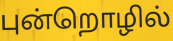
புன்றொழில்